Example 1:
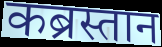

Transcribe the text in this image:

कब्रस्तान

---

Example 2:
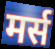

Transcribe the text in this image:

मर्स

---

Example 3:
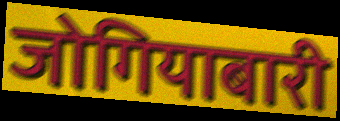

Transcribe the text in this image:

जोगियाबारी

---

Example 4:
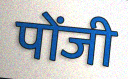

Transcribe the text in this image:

पोंजी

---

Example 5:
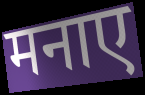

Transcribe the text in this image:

मनाए